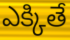
ఎక్కితే